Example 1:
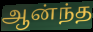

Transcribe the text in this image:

ஆன்ந்த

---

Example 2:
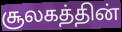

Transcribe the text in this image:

சூலகத்தின்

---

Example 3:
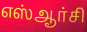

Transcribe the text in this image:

எஸ்ஆர்சி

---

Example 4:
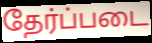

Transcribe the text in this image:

தேர்ப்படை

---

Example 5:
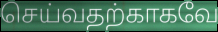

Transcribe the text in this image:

செய்வதற்காகவே